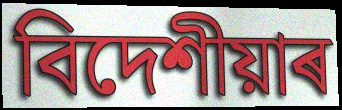
বিদেশীয়াৰ